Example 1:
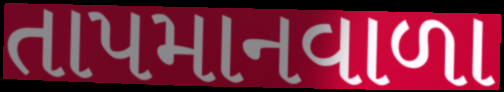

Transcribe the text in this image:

તાપમાનવાળા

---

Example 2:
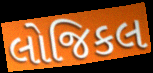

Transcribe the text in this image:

લોજિકલ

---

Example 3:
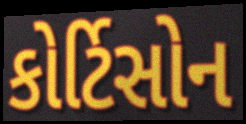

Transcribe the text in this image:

કોર્ટિસોન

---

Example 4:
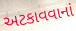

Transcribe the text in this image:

અટકાવવાનાં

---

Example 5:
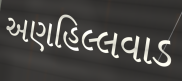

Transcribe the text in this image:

અણહિલ્લવાડ